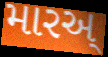
મારઅ્